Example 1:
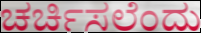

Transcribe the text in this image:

ಚರ್ಚಿಸಲೆಂದು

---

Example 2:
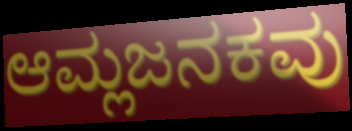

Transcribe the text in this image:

ಆಮ್ಲಜನಕವು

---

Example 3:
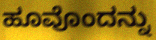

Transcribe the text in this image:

ಹೂವೊಂದನ್ನು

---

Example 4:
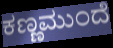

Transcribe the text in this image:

ಕಣ್ಣಮುಂದೆ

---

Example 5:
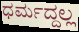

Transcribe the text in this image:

ಧರ್ಮದ್ದಲ್ಲ